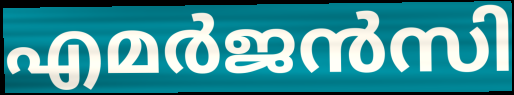
എമർജൻസി